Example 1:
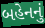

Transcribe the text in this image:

બહેનનું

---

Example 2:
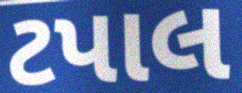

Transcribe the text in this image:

ટપાલ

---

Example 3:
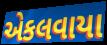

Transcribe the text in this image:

એકલવાયા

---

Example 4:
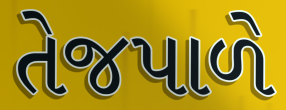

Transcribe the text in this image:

તેજપાળે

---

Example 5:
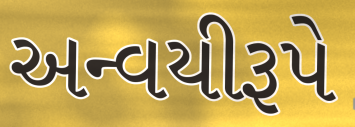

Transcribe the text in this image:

અન્વયીરૂપે